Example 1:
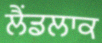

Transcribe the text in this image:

ਲੈਂਡਲਾਕ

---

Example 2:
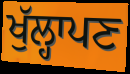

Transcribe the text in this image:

ਖੁੱਲ੍ਹਾਪਣ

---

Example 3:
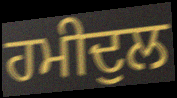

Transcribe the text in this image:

ਹਮੀਦੁਲ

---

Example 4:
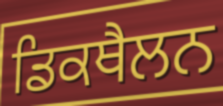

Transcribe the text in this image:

ਡਿਕਥੈਲਨ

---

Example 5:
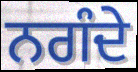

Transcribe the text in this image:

ਨਗੰਦੇ